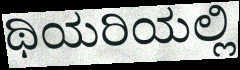
ಥಿಯರಿಯಲ್ಲಿ